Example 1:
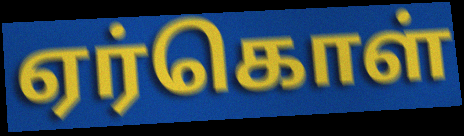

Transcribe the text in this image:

ஏர்கொள்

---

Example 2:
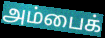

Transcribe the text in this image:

அம்பைக்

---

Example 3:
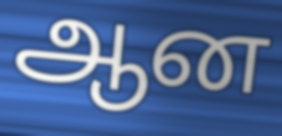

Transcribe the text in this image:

ஆன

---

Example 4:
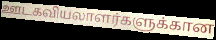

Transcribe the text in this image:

ஊடகவியலாளர்களுக்கான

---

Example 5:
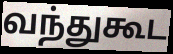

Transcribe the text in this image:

வந்துகூட